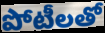
పోటీలతో